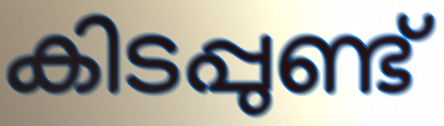
കിടപ്പുണ്ട്